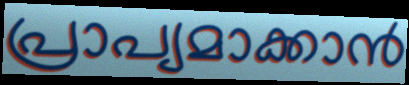
പ്രാപ്യമാക്കാൻ